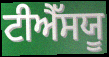
ਟੀਐੱਸਯੂ